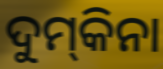
ଦୁମ୍‌କିନା